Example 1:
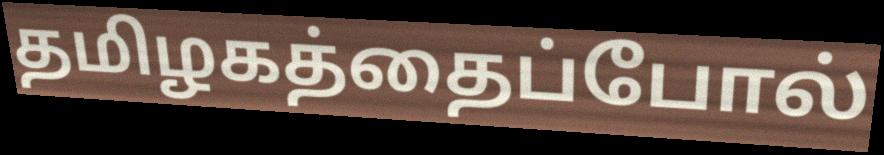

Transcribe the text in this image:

தமிழகத்தைப்போல்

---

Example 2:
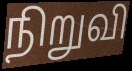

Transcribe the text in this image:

நிறுவி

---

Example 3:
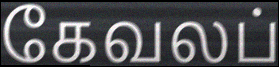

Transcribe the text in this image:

கேவலப்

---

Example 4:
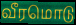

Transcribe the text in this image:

வீரமொடு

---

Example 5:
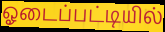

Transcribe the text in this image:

ஓடைப்பட்டியில்